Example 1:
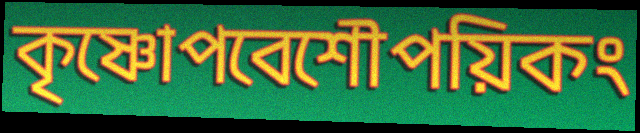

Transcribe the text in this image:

কৃষ্ণোপবেশৌপয়িকং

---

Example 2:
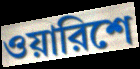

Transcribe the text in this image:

ওয়ারিশে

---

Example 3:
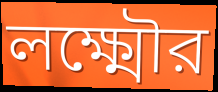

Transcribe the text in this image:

লক্ষ্মৌর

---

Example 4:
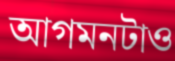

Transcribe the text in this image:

আগমনটাও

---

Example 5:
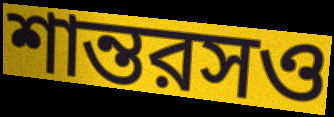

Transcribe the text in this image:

শান্তরসও